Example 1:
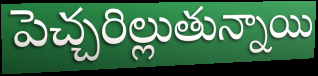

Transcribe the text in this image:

పెచ్చరిల్లుతున్నాయి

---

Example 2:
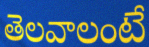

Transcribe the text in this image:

తెలవాలంటే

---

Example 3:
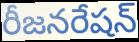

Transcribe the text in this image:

రీజనరేషన్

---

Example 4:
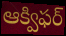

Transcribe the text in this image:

ఆక్విఫర్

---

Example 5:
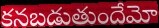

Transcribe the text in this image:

కనబడుతుందేమో